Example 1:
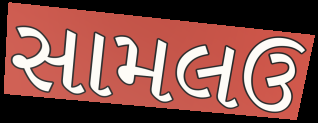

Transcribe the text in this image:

સામલઉ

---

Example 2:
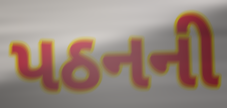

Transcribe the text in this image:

પઠનની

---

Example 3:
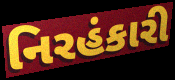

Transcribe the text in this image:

નિરહંકારી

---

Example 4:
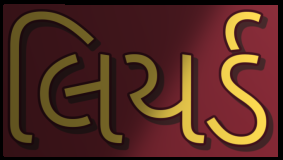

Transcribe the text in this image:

લિયર્ડ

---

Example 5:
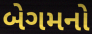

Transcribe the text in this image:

બેગમનો